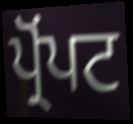
ਪ੍ਰੋਂਪਟ